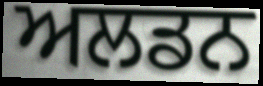
ਅਲਡਨ